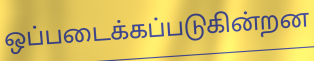
ஒப்படைக்கப்படுகின்றன